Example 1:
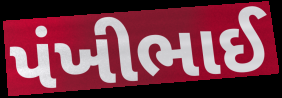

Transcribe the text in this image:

પંખીભાઈ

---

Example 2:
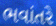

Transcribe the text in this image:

ભવાંતરે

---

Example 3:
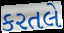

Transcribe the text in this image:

કરતલે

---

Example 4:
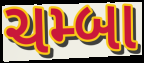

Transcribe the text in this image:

ચમ્બા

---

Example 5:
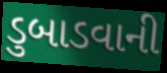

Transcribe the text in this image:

ડુબાડવાની